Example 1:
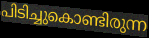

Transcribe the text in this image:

പിടിച്ചുകൊണ്ടിരുന്ന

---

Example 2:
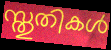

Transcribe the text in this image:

സ്തുതികൾ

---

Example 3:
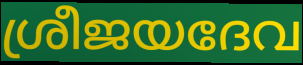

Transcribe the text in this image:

ശ്രീജയദേവ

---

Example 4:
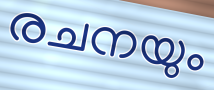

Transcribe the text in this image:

രചനയും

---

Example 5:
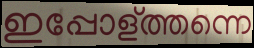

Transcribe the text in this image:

ഇപ്പോള്ത്തന്നെ